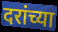
दरांच्या